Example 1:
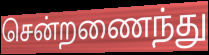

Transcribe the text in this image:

சென்றணைந்து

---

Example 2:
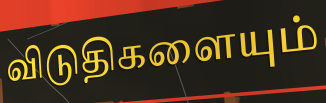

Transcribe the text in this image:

விடுதிகளையும்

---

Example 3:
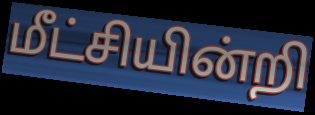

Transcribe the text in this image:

மீட்சியின்றி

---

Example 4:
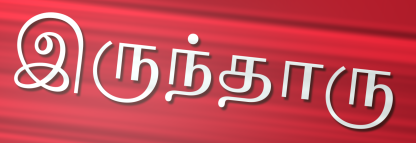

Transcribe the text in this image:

இருந்தாரு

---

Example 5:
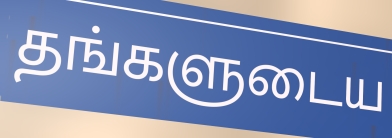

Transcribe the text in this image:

தங்களுடைய